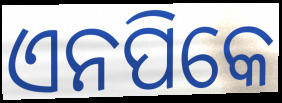
ଏନପିକେ